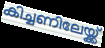
കിച്ചണിലേയ്ക്ക്